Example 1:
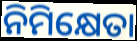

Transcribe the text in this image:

ନିମିକ୍ଷେତା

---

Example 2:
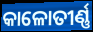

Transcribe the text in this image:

କାଳୋତୀର୍ଣ୍ଣ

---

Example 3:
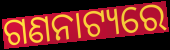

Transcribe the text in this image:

ଗଣନାଟ୍ୟରେ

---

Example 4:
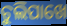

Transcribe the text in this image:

ଚୁଲିପାଖେ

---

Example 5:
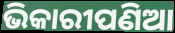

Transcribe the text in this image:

ଭିକାରୀପଣିଆ